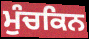
ਮੁੰਚਕਿਨ